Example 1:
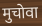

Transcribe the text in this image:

मुचोवा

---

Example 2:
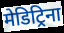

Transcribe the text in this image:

मेडिट्रिना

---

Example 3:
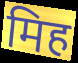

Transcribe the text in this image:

मिह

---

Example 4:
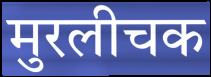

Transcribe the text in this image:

मुरलीचक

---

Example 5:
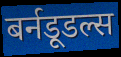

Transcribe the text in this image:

बर्नडूडल्स